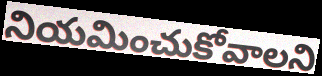
నియమించుకోవాలని